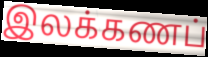
இலக்கணப்